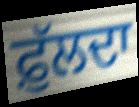
ਫ਼ੁੱਲਦਾ